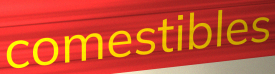
comestibles